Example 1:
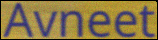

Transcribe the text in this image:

Avneet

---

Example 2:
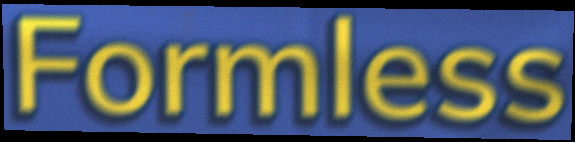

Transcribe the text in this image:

Formless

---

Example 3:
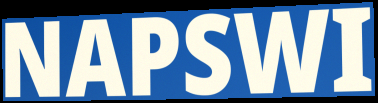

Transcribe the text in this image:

NAPSWI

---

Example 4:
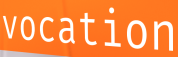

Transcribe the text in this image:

vocation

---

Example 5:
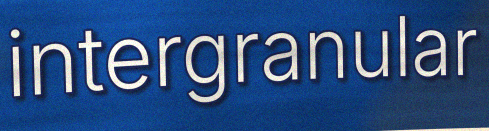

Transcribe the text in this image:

intergranular